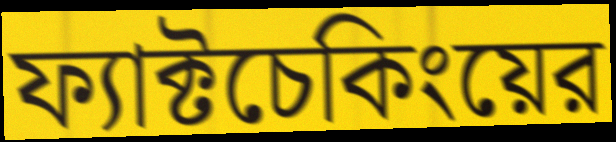
ফ্যাক্টচেকিংয়ের